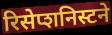
रिसेप्शनिस्टने